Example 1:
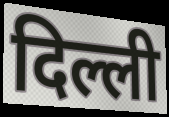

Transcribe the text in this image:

दिल्ली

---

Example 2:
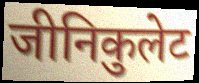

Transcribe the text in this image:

जीनिकुलेट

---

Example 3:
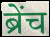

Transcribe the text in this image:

ब्रेंच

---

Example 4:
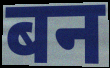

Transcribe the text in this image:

बन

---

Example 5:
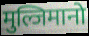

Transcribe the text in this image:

मुल्जिमानो